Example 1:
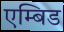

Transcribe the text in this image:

एम्बिड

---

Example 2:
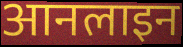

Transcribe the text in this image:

आनलाइन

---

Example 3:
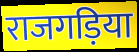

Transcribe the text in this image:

राजगड़िया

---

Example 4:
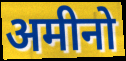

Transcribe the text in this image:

अमीनो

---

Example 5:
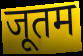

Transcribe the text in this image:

जूतम